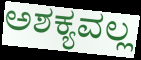
ಅಶಕ್ಯವಲ್ಲ